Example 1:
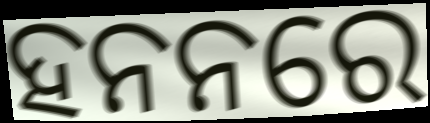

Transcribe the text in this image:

ହନନରେ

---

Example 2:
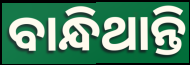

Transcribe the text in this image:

ବାନ୍ଧିଥାନ୍ତି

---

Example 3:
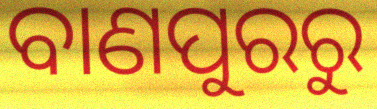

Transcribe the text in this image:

ବାଣପୁରରୁ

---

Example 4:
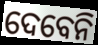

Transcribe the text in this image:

ଦେବେନି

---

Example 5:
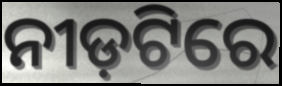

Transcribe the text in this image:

ନୀଡ଼ଟିରେ